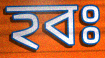
হবঃ